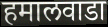
हमालवाडा